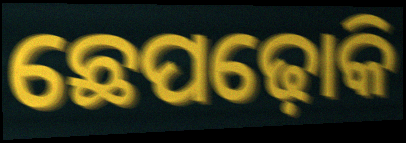
ଛେପଢ଼ୋକି